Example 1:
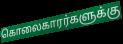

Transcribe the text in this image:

கொலைகாரர்களுக்கு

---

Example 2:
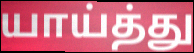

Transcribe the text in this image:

யாய்த்து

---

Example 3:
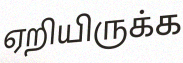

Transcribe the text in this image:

ஏறியிருக்க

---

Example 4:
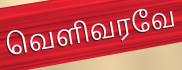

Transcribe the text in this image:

வெளிவரவே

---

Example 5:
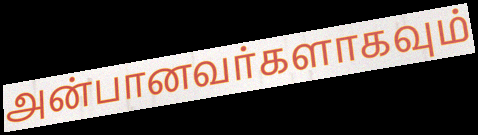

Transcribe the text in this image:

அன்பானவர்களாகவும்